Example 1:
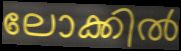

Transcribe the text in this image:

ലോക്കിൽ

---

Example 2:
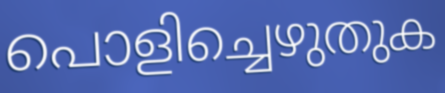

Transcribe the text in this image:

പൊളിച്ചെഴുതുക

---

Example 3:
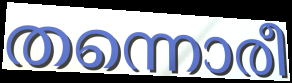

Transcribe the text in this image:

തന്നൊരീ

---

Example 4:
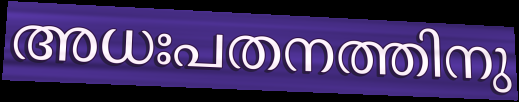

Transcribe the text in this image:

അധഃപതനത്തിനു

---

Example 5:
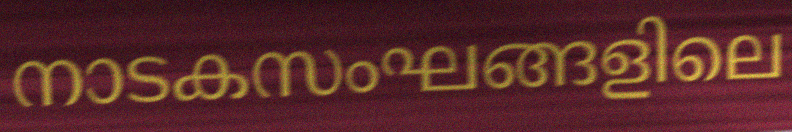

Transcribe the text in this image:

നാടകസംഘങ്ങളിലെ